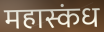
महास्कंध